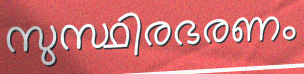
സുസ്ഥിരഭരണം